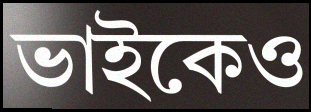
ভাইকেও